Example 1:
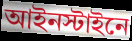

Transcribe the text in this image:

আইনস্টাইনে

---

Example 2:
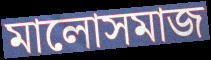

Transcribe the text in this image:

মালোসমাজ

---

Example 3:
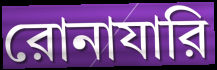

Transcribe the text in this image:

রোনাযারি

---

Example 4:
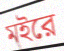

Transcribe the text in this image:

মইরে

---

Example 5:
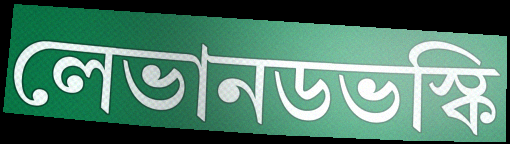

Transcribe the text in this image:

লেভানডভস্কি